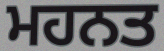
ਮਹਨਤ